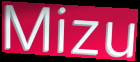
Mizu